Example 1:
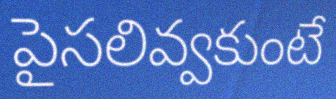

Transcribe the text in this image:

పైసలివ్వకుంటే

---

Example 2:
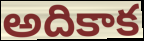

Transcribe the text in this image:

అదికాక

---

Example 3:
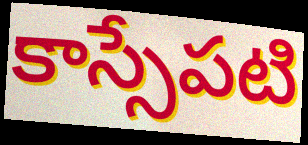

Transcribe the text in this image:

కాస్సేపటి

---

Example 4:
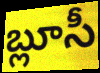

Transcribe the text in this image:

బ్లూసీ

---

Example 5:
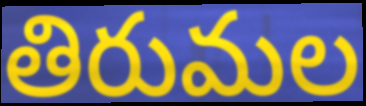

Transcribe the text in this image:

తిరుమల